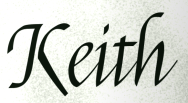
Keith